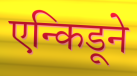
एन्किडूने